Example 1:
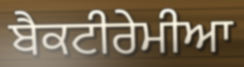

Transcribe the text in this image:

ਬੈਕਟੀਰੇਮੀਆ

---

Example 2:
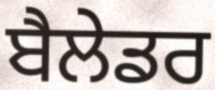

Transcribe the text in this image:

ਬੈਲੇਡਰ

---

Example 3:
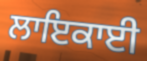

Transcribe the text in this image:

ਲਾਇਕਾਈ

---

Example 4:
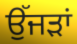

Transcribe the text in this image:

ਉੱਜੜਾਂ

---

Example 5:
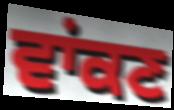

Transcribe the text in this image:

ਵਾਂਕਣ